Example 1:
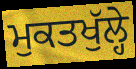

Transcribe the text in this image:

ਮੁਕਤਖੁੱਲ੍ਹੇ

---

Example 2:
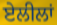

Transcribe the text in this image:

ਏਲੀਲਾਂ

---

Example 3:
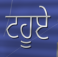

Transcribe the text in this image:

ਟਹੂਏ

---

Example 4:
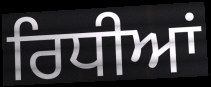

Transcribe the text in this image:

ਰਿਧੀਆਂ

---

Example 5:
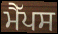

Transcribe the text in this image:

ਮੈੱਪਸ